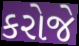
કરોજે